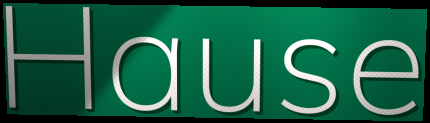
Hause